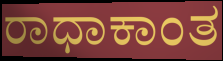
ರಾಧಾಕಾಂತ